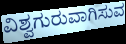
ವಿಶ್ವಗುರುವಾಗಿಸುವ